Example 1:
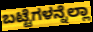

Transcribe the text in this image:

ಬಟ್ಟೆಗಳನ್ನೆಲ್ಲಾ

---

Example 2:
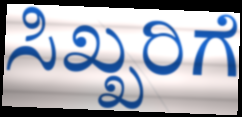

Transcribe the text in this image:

ಸಿಖ್ಖರಿಗೆ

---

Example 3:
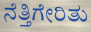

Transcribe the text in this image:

ನೆತ್ತಿಗೇರಿತು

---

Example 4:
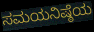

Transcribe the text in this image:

ಸಮಯನಿಷ್ಠೆಯ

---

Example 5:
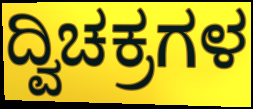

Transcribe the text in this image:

ದ್ವಿಚಕ್ರಗಳ